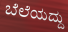
ಬೆಲೆಯದ್ದು